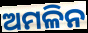
ଅମଳିନ